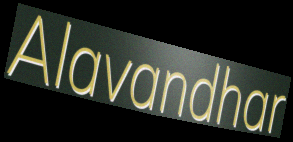
Alavandhar